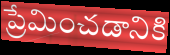
ప్రేమించడానికి